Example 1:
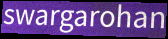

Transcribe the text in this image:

swargarohan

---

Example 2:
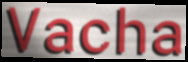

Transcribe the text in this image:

Vacha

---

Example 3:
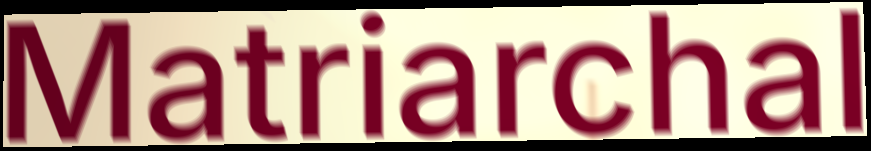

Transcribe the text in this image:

Matriarchal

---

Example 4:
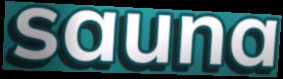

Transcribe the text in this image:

sauna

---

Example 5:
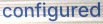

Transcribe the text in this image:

configured